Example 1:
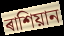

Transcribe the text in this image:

ৰাশিয়ান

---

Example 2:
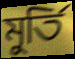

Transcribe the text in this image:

মুৰ্তি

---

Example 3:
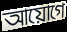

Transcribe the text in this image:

আয়োগে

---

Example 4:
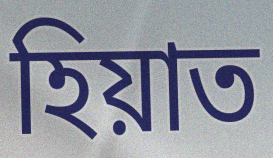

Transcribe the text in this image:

হিয়াত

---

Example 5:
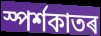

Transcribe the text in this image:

স্পৰ্শকাতৰ